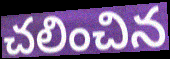
చలించిన